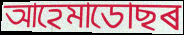
আহেমাডোছৰ